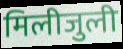
मिलीजुली